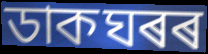
ডাকঘৰৰ